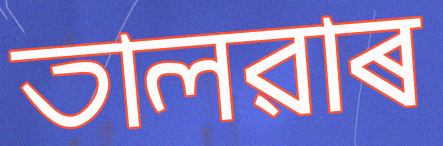
তালৱাৰ